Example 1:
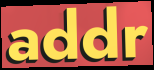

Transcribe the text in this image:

addr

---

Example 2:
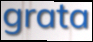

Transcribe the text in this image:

grata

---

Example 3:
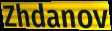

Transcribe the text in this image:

Zhdanov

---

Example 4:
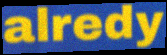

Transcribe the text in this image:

alredy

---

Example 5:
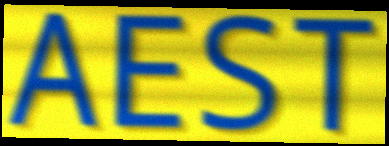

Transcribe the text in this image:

AEST